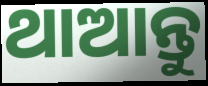
ଥାଆନ୍ତୁ